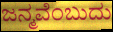
ಜನ್ಮವೆಂಬುದು